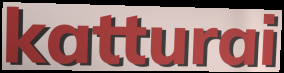
katturai